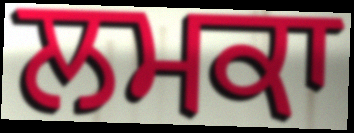
ਲਮਕਾ